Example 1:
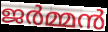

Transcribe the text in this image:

ജർമ്മൻ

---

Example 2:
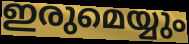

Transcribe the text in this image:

ഇരുമെയ്യും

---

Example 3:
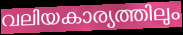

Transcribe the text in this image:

വലിയകാര്യത്തിലും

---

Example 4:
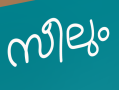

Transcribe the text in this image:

സീലും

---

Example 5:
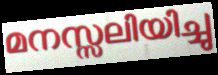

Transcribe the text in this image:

മനസ്സലിയിച്ചു